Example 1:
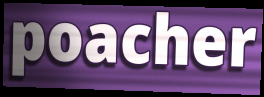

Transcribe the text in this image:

poacher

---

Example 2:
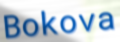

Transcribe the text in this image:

Bokova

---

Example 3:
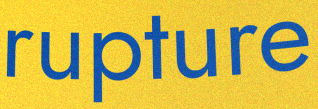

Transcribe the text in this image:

rupture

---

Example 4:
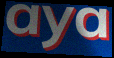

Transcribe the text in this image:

aya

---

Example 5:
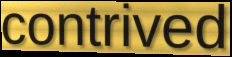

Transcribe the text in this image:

contrived